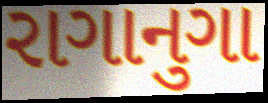
રાગાનુગા